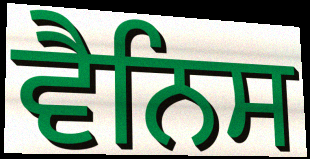
ਵੈਨਿਸ